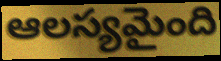
ఆలస్యమైంది